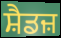
ਸ਼ੈਡਜ਼